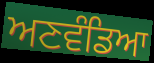
ਅਣਵੰਡਿਆ